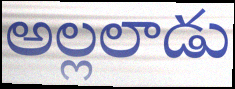
అల్లలాడు